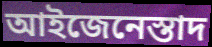
আইজেনেস্তাদ